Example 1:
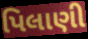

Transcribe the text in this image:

પિલાણી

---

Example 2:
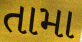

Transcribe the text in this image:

તામા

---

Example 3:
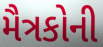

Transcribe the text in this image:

મૈત્રકોની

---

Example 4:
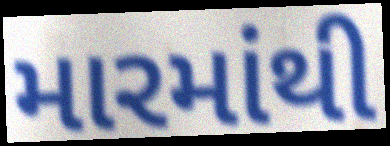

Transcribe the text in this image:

મારમાંથી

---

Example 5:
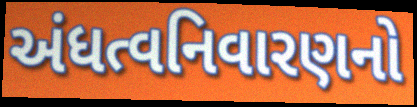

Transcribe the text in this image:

અંધત્વનિવારણનો